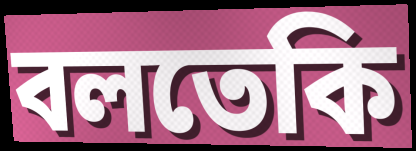
বলতেকি